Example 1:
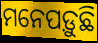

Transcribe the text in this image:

ମନେପଡ଼ୁଛି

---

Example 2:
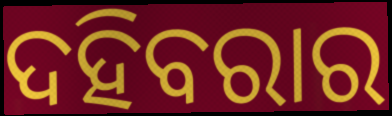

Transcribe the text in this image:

ଦହିବରାର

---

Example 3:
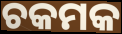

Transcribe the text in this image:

ଚକମକ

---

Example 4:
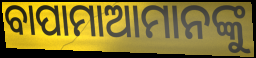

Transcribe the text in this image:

ବାପାମାଆମାନଙ୍କୁ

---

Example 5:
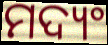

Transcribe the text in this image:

ମଦ୍ୟଂ